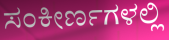
ಸಂಕೀರ್ಣಗಳಲ್ಲಿ